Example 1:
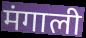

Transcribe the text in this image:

मंगाली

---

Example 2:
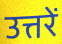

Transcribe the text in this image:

उत्तरें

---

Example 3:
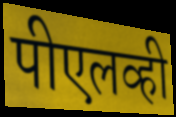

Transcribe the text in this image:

पीएलव्ही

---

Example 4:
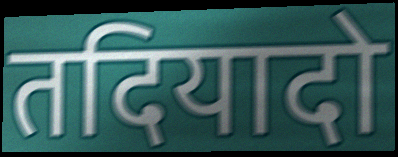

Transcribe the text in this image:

तदियादो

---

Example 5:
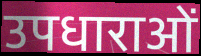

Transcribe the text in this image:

उपधाराओं